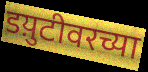
डय़ुटीवरच्या